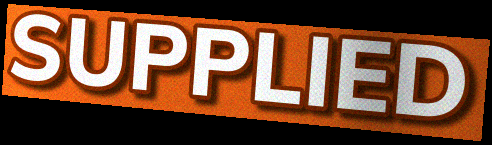
SUPPLIED